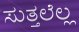
ಸುತ್ತಲೆಲ್ಲ